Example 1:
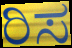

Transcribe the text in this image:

ರಿಸ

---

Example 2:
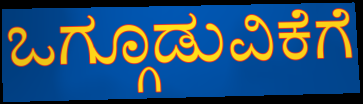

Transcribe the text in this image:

ಒಗ್ಗೂಡುವಿಕೆಗೆ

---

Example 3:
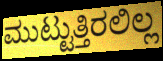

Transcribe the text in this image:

ಮುಟ್ಟುತ್ತಿರಲಿಲ್ಲ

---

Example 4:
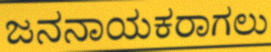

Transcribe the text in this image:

ಜನನಾಯಕರಾಗಲು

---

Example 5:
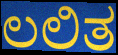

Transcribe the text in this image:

ಲಲಿತ